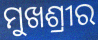
ମୁଖଶ୍ରୀର